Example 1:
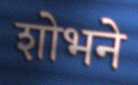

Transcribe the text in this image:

शोभने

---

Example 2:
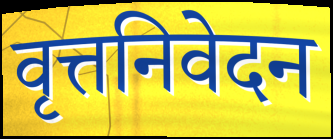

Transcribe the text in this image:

वृत्तनिवेदन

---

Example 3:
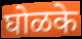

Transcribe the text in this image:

घोळके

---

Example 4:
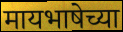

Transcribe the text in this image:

मायभाषेच्या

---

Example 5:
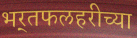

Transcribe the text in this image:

भर्तफलहरीच्या